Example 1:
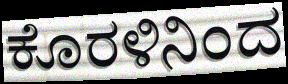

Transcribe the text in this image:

ಕೊರಳಿನಿಂದ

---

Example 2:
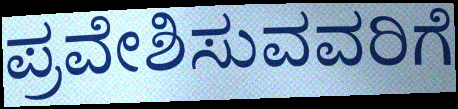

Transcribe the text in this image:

ಪ್ರವೇಶಿಸುವವರಿಗೆ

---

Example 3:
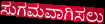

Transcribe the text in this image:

ಸುಗಮವಾಗಿಸಲು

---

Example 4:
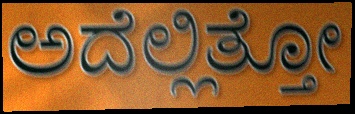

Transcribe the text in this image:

ಅದೆಲ್ಲಿತ್ತೋ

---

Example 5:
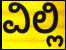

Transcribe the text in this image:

ವಿಲ್ಲಿ